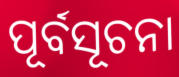
ପୂର୍ବସୂଚନା